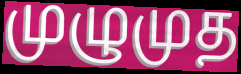
முழுமுத